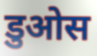
डुओस